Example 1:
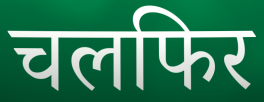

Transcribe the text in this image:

चलफिर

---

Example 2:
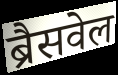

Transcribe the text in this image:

ब्रैसवेल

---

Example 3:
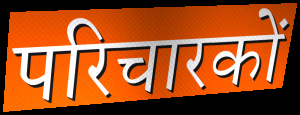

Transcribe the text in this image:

परिचारकों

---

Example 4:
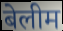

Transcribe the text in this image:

बेलीम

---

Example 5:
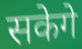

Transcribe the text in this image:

सकेगे